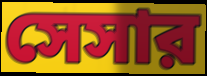
সেসার